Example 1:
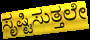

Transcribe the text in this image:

ಸೃಷ್ಟಿಸುತ್ತಲೇ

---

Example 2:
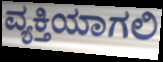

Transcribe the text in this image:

ವ್ಯಕ್ತಿಯಾಗಲಿ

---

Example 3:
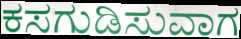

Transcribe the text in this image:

ಕಸಗುಡಿಸುವಾಗ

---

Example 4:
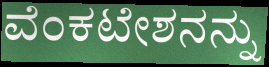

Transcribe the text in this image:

ವೆಂಕಟೇಶನನ್ನು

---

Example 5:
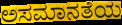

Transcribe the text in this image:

ಅಸಮಾನತೆಯ